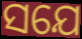
ସଯେ